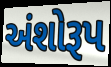
અંશોરૂપ